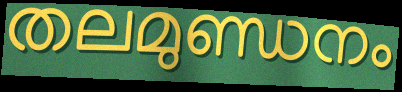
തലമുണ്ഡനം